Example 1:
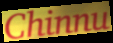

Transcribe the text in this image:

Chinnu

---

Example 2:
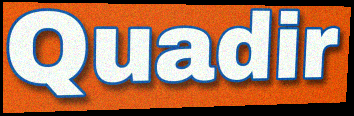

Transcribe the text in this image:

Quadir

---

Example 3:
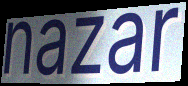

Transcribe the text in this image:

nazar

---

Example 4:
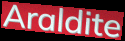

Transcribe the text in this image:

Araldite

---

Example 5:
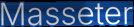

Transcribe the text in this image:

Masseter